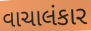
વાચાલંકાર